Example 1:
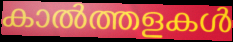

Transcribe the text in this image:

കാൽത്തളകൾ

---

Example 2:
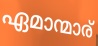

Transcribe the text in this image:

ഏമാന്മാര്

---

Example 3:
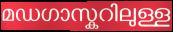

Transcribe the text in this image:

മഡഗാസ്കറിലുള്ള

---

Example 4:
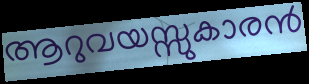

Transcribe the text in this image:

ആറുവയസ്സുകാരൻ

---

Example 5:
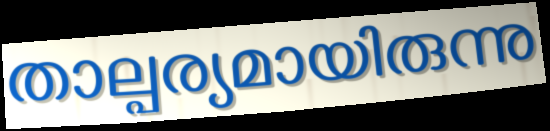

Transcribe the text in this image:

താല്പര്യമായിരുന്നു